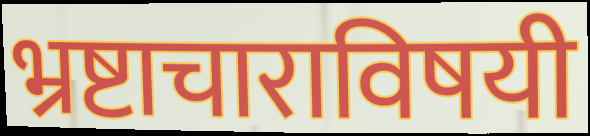
भ्रष्टाचाराविषयी